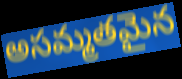
అసమ్మతమైన